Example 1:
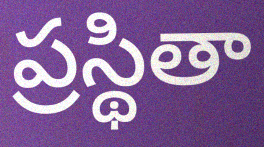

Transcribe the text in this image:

ప్రస్థితా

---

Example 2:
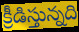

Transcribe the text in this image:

క్రీడిస్తున్నది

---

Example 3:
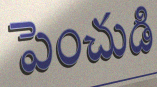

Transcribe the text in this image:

పెంచుడి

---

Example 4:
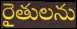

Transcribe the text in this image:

రైతులను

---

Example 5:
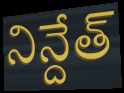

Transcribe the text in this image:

నిన్దేత్